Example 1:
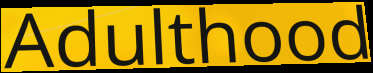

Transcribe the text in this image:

Adulthood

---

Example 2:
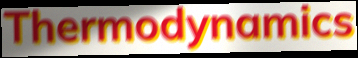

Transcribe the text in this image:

Thermodynamics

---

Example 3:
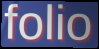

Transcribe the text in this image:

folio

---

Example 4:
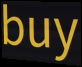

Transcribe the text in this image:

buy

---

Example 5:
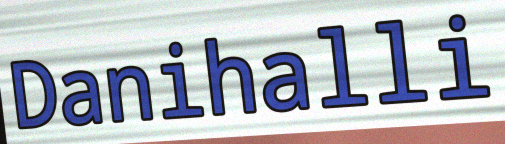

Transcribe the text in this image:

Danihalli